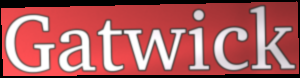
Gatwick